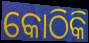
କୋଠିକି